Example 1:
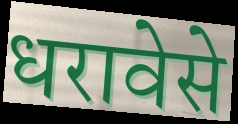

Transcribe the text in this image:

धरावेसे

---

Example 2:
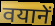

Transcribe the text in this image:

वयानें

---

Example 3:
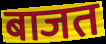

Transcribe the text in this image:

बाजत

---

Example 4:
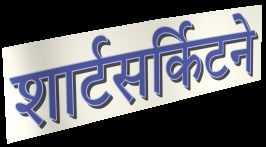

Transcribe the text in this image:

शार्टसर्किटने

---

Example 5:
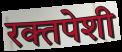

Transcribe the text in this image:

रक्तपेशी